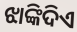
ଝାଙ୍କିଦିଏ